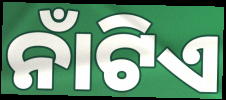
ନାଁଟିଏ